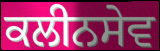
ਕਲੀਨਸੇਵ